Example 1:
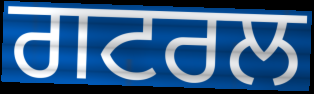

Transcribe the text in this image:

ਗਟਰਲ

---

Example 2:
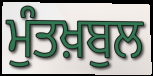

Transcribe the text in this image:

ਮੁੰਤਖ਼ਬੁਲ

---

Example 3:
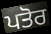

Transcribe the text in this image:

ਪਤੋਰ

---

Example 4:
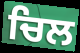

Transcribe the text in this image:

ਚਿਲ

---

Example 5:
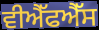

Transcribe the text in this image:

ਵੀਐੱਫਐੱਸ